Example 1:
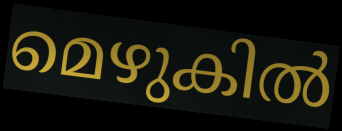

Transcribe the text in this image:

മെഴുകിൽ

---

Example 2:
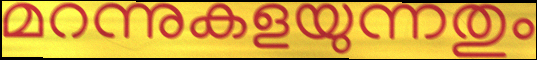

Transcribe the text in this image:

മറന്നുകളയുന്നതും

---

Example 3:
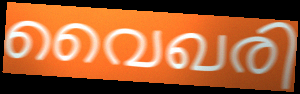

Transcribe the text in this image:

വൈഖരി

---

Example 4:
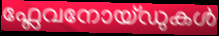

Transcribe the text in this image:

ഫ്ലേവനോയ്ഡുകൾ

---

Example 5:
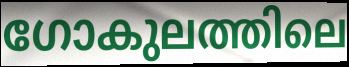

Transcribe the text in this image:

ഗോകുലത്തിലെ